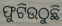
ଫୁଟିଉଠୁଛି